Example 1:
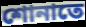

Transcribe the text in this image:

শোনাতে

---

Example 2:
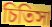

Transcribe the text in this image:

চিতিসা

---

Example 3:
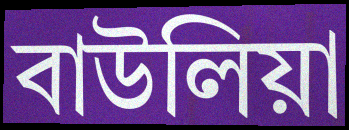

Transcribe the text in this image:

বাউলিয়া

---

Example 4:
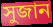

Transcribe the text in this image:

সুজান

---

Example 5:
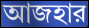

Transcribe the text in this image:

আজহার